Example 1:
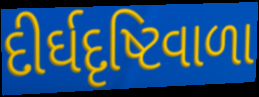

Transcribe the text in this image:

દીર્ઘદૃષ્ટિવાળા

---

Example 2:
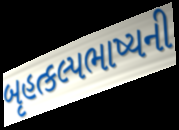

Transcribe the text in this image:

બૃહત્કલ્પભાષ્યની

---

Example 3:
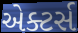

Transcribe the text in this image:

એક્ટર્સ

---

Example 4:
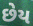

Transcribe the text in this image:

છેય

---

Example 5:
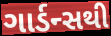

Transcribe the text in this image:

ગાર્ડન્સથી